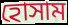
হোসাম